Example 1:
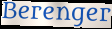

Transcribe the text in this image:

Berenger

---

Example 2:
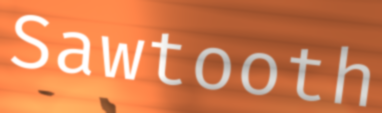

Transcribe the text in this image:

Sawtooth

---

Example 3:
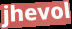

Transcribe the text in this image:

jhevol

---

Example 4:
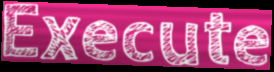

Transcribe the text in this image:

Execute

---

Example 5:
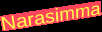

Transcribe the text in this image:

Narasimma